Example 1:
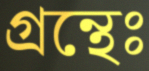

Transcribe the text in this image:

গ্রন্থেঃ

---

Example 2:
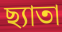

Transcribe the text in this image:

ছ্যাতা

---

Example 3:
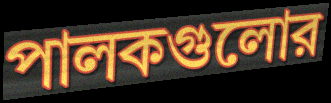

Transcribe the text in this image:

পালকগুলোর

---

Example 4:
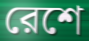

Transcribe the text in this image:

রেশে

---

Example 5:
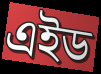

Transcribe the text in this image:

এইড